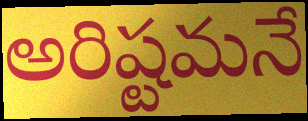
అరిష్టమనే